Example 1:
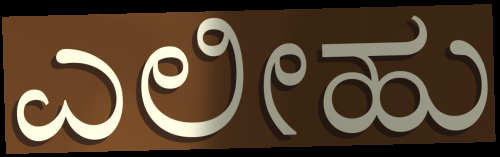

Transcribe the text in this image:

ಎಲೀಹು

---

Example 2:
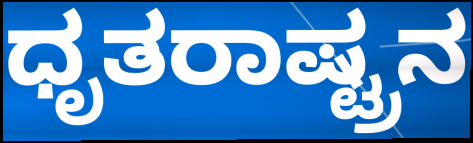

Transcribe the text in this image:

ಧೃತರಾಷ್ಟ್ರನ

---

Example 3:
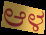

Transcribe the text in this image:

ಆಳ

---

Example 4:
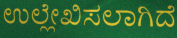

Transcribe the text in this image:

ಉಲ್ಲೇಖಿಸಲಾಗಿದೆ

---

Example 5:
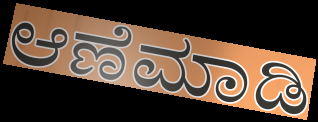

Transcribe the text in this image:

ಆಣೆಮಾಡಿ